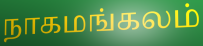
நாகமங்கலம்